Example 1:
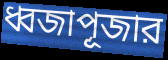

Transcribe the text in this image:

ধ্বজাপূজার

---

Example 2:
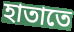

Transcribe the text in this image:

হাতাতে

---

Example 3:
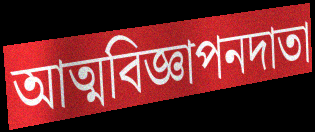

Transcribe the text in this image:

আত্মবিজ্ঞাপনদাতা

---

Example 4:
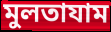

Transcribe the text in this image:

মুলতাযাম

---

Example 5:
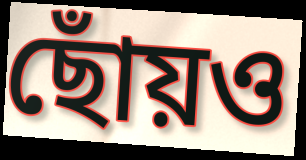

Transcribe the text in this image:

ছোঁয়ও